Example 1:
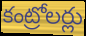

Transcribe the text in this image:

కంట్రోలర్లు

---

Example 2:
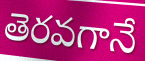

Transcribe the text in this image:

తెరవగానే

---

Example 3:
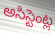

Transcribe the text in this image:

అసిస్టెంట్ల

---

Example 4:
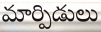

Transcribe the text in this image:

మార్పిడులు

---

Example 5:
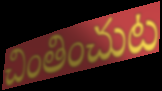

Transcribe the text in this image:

చింతించుట